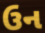
ઉન